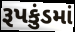
રૂપકુંડમાં